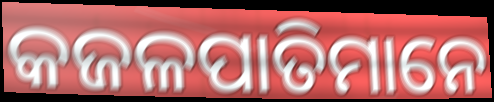
କଜଳପାତିମାନେ